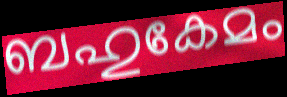
ബഹുകേമം